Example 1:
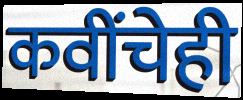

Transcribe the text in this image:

कवींचेही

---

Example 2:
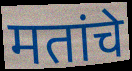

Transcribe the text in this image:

मतांचे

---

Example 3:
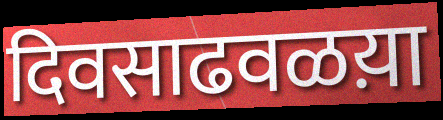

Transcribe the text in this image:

दिवसाढवळय़ा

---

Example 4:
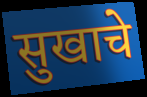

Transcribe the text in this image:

सुखाचे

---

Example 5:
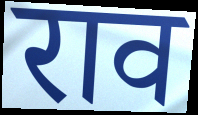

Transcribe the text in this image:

राव